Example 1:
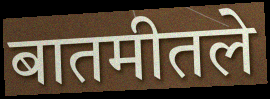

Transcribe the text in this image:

बातमीतले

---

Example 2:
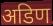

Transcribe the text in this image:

अडिण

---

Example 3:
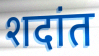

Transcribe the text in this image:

शदांत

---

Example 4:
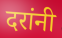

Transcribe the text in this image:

दरांनी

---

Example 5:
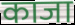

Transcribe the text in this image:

काजा